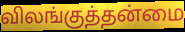
விலங்குத்தன்மை